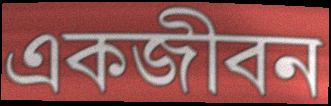
একজীবন